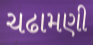
ચઢામણી